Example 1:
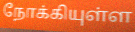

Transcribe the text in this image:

நோக்கியுள்ள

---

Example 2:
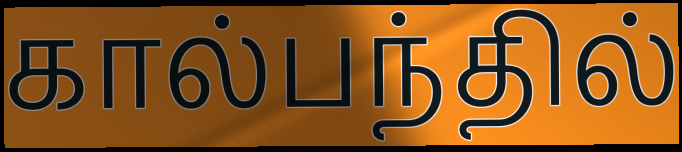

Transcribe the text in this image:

கால்பந்தில்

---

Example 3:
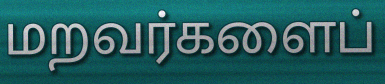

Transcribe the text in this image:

மறவர்களைப்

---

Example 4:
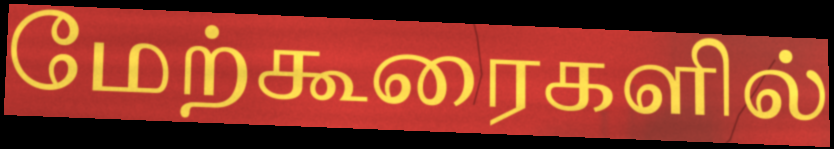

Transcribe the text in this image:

மேற்கூரைகளில்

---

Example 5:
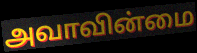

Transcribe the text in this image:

அவாவின்மை